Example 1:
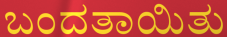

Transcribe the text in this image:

ಬಂದತಾಯಿತು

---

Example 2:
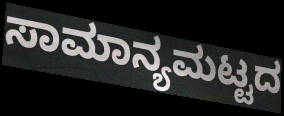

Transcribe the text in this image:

ಸಾಮಾನ್ಯಮಟ್ಟದ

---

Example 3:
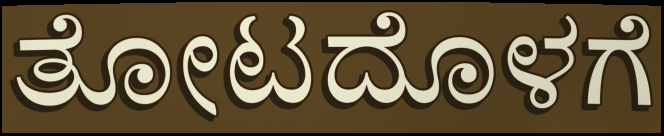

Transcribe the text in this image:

ತೋಟದೊಳಗೆ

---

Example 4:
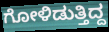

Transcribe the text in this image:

ಗೋಳಿಡುತ್ತಿದ್ದ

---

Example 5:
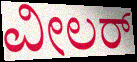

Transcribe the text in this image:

ವೀಲರ್